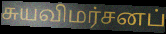
சுயவிமர்சனப்